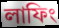
লাফিং